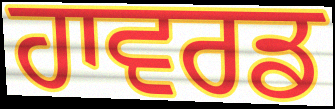
ਹਾਵਰਡ